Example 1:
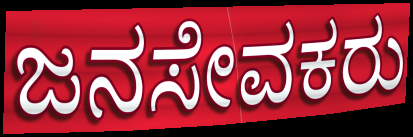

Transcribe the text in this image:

ಜನಸೇವಕರು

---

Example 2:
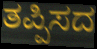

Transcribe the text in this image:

ತಪ್ಪಿಸದ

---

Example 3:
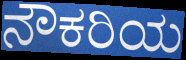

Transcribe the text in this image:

ನೌಕರಿಯ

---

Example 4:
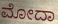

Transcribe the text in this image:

ಮೋದಾ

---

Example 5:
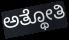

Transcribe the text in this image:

ಅತ್ಥೋತಿ